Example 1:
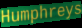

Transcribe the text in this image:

Humphreys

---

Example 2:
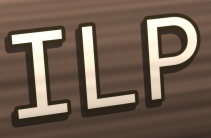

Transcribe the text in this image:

ILP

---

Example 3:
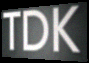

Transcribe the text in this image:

TDK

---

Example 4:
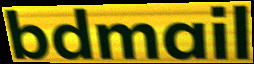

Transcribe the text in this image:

bdmail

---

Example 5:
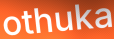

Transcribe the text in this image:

othuka